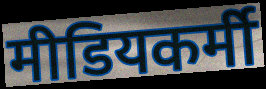
मीडियकर्मी